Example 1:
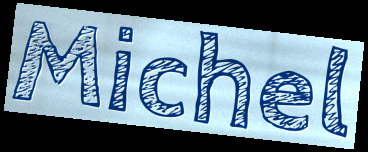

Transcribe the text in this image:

Michel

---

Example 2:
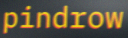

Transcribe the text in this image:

pindrow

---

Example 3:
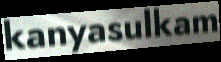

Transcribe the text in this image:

kanyasulkam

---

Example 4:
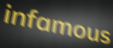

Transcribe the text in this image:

infamous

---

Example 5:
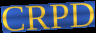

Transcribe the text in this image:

CRPD